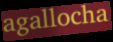
agallocha